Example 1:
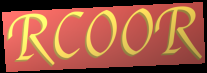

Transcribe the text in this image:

RCOOR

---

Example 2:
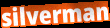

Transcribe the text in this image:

silverman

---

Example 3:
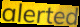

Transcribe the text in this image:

alerted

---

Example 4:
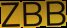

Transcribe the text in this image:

ZBB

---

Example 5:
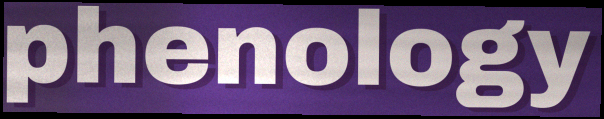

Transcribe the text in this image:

phenology